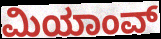
ಮಿಯಾಂವ್